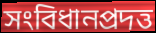
সংবিধানপ্রদত্ত